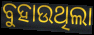
ବୁହାଉଥିଲା